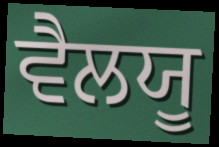
ਵੈਲਯੂ